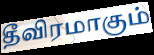
தீவிரமாகும்